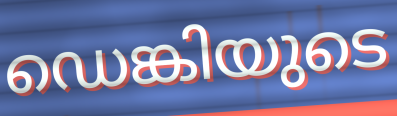
ഡെങ്കിയുടെ